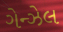
ગેન્ઝેલ